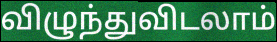
விழுந்துவிடலாம்